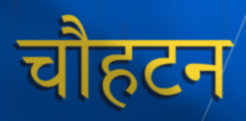
चौहटन